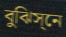
বুঝিস্‌নে